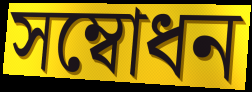
সম্বোধন